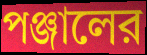
পঞ্জালের